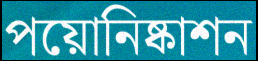
পয়োনিষ্কাশন